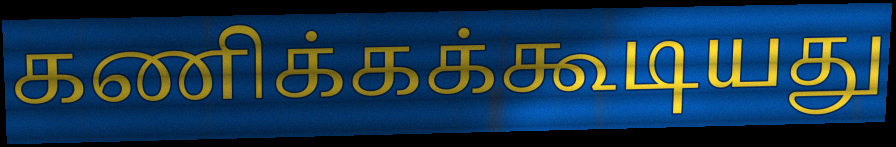
கணிக்கக்கூடியது